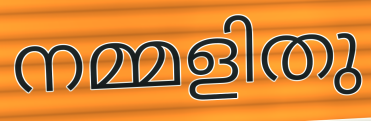
നമ്മളിതു